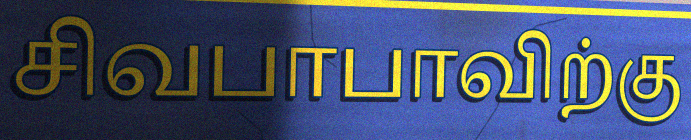
சிவபாபாவிற்கு